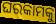
ଘରକାମକୁ